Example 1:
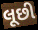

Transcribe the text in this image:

લૂછી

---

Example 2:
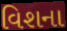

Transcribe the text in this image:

વિશના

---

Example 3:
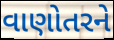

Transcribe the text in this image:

વાણોતરને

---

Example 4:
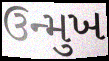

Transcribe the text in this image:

ઉન્મુખ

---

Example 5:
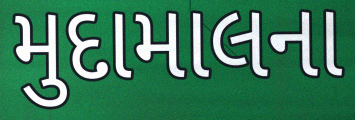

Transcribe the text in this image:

મુદામાલના